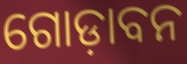
ଗୋଡ଼ାବନ